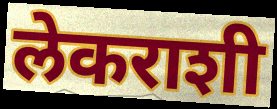
लेकराशी